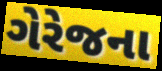
ગેરેજના